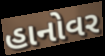
હાનોવર